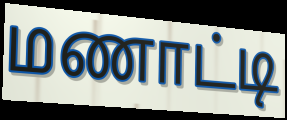
மணாட்டி